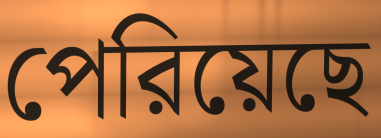
পেরিয়েছে